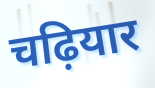
चढ़ियार